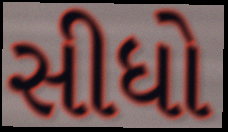
સીધો